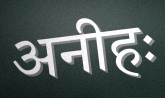
अनीहः